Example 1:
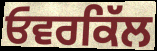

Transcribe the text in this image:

ਓਵਰਕਿੱਲ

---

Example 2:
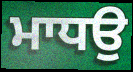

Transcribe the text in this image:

ਮਾਧਉ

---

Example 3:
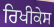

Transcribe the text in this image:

ਰਿਖੀਕੇਸ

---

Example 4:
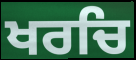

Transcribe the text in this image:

ਖਰਚਿ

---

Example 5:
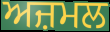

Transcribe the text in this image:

ਅਜ਼ਮਲ